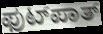
ಫುಟ್‍ಪಾತ್